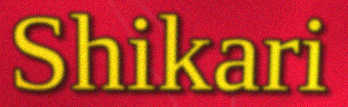
Shikari